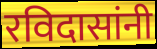
रविदासांनी